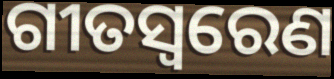
ଗୀତସ୍ବରେଣ